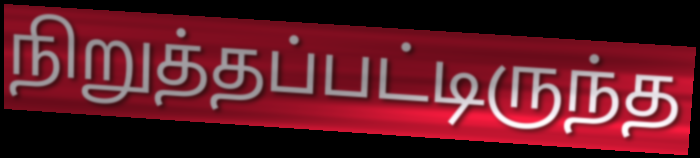
நிறுத்தப்பட்டிருந்த